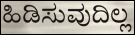
ಹಿಡಿಸುವುದಿಲ್ಲ